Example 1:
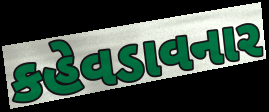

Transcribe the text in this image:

કહેવડાવનાર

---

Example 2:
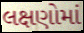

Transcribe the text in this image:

લક્ષણોમાં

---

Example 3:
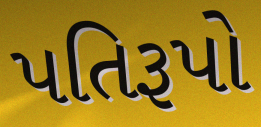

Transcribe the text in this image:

પતિરૂપો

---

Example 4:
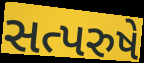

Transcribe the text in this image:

સત્પરુષે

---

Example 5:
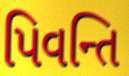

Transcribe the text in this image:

પિવન્તિ